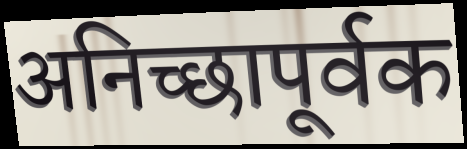
अनिच्छापूर्वक